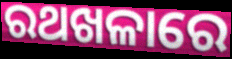
ରଥଖଳାରେ